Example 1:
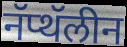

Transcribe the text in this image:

नॅप्थॅलीन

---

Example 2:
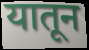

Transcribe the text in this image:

यातून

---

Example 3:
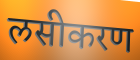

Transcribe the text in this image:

लसीकरण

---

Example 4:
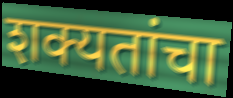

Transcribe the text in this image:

शक्यतांचा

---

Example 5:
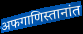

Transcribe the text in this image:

अफगाणिस्तानांत